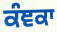
ਕੰਞਕਾ